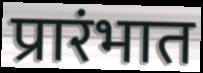
प्रारंभात